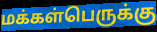
மக்கள்பெருக்கு